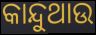
କାନ୍ଦୁଥାଉ